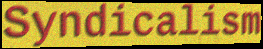
Syndicalism